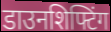
डाउनशिफ्टिंग